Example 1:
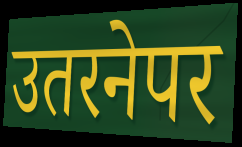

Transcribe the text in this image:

उतरनेपर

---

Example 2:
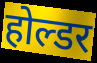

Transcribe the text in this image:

होल्डर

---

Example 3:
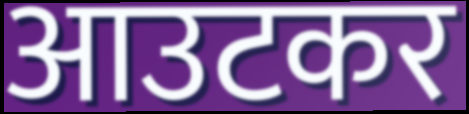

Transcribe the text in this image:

आउटकर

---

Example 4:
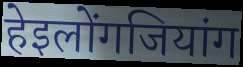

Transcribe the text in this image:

हेइलोंगजियांग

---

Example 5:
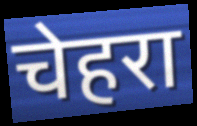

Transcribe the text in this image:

चेहरा